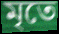
মৃতে